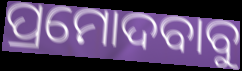
ପ୍ରମୋଦବାବୁ